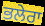
ਭਲੇਰਾ